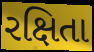
રક્ષિતા